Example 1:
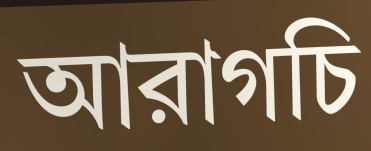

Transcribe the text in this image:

আরাগচি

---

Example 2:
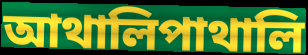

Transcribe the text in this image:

আথালিপাথালি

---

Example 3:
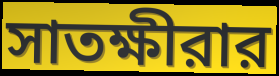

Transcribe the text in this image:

সাতক্ষীরার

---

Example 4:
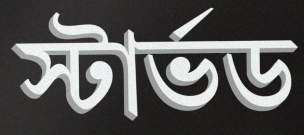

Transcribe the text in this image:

স্টার্ভড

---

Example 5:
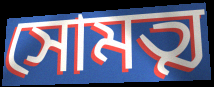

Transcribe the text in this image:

সোমত্ম